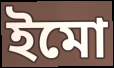
ইমো